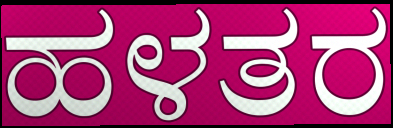
ಹಳತರ